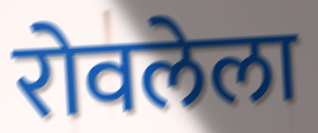
रोवलेला